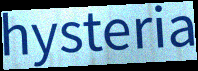
hysteria